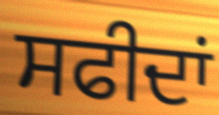
ਸਫੀਦਾਂ